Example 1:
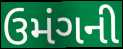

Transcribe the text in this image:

ઉમંગની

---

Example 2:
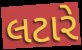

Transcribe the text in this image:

લટારે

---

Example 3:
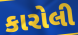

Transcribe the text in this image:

કારોલી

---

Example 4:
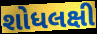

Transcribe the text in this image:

શોધલક્ષી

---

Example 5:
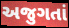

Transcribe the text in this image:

અજુગતાં